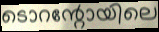
ടൊറന്റോയിലെ